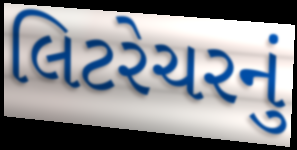
લિટરેચરનું